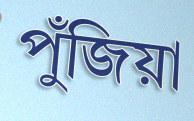
পুঁজিয়া